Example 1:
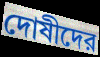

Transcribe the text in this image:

দোষীদের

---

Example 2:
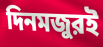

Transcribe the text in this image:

দিনমজুরই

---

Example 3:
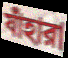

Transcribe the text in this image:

যাঁহারা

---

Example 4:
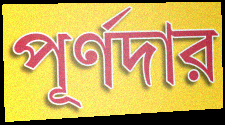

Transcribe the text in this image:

পূর্ণদার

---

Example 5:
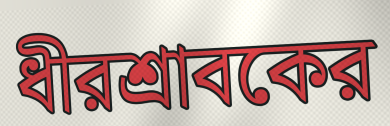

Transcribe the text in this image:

ধীরশ্রাবকের